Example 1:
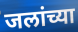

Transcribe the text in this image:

जलांच्या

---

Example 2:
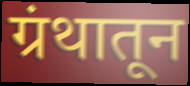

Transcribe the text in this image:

ग्रंथातून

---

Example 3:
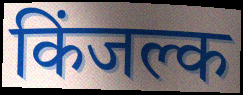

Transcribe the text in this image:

किंजल्क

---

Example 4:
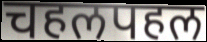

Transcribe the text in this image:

चहलपहल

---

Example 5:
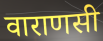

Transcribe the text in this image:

वाराणसी